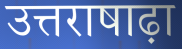
उत्तराषाढ़ा